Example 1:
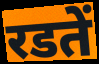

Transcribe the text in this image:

रडतें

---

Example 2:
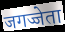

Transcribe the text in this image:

जगज्जेता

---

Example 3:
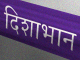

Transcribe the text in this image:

दिशाभान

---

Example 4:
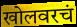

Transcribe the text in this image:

खोलवरचं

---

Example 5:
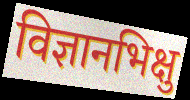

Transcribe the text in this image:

विज्ञानभिक्षु